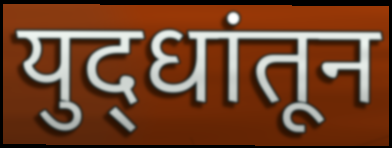
युद्धांतून